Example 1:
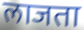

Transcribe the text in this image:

लाजता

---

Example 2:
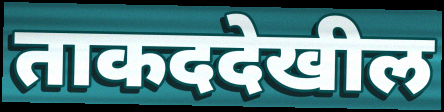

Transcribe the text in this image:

ताकददेखील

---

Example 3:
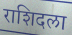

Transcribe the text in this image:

राशिदला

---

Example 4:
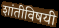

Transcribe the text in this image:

शांतीविषयी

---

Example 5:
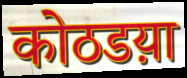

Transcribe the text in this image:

कोठडय़ा